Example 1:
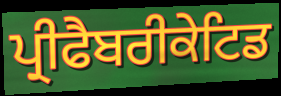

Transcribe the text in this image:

ਪ੍ਰੀਫੈਬਰੀਕੇਟਿਡ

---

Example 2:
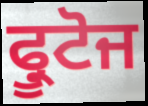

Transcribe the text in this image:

ਫ੍ਰੂਟੋਜ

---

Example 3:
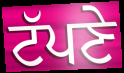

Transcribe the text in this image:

ਟੱਪਣੇ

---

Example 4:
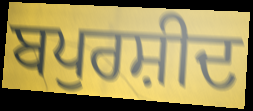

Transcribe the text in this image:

ਬਪੁਰਸ਼ੀਦ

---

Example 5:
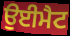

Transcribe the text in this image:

ਉਈਮੈਟ